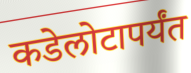
कडेलोटापर्यंत